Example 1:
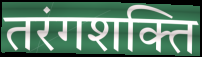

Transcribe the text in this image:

तरंगशक्ति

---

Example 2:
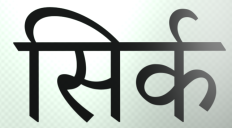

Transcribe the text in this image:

सिर्क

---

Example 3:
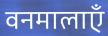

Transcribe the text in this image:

वनमालाएँ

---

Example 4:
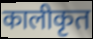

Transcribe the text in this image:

कालीकृत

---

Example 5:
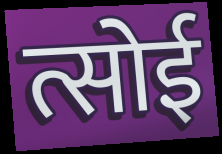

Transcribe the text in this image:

त्सोई